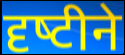
दृष्‍टीने